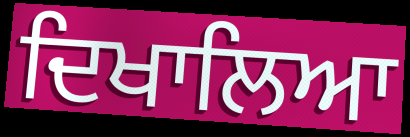
ਦਿਖਾਲਿਆ